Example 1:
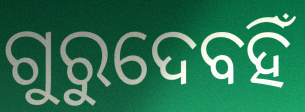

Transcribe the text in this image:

ଗୁରୁଦେବହିଁ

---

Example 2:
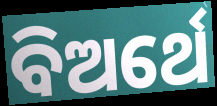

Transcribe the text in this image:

ବିଅର୍ଥେ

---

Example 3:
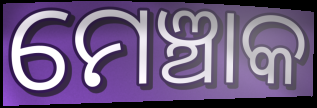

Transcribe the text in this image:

ମେଞ୍ଚାକ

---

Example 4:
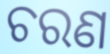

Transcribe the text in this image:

ଚରଣ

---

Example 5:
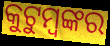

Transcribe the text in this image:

କୁଟୁମ୍ବଙ୍କର